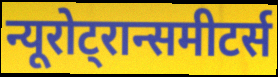
न्यूरोट्रान्समीटर्स